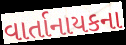
વાર્તાનાયકના